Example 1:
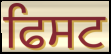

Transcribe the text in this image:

ਫਿਸਟ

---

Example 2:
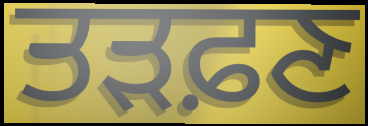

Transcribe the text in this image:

ਤੜਫ਼ਣ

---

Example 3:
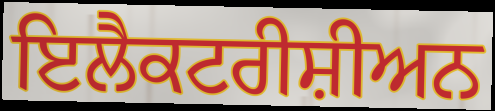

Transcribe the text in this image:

ਇਲੈਕਟਰੀਸ਼ੀਅਨ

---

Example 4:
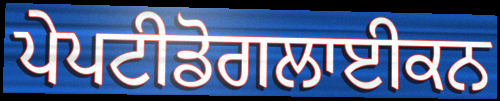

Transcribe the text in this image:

ਪੇਪਟੀਡੋਗਲਾਈਕਨ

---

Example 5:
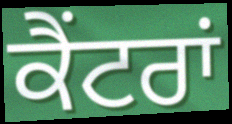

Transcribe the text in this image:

ਕੈਂਟਰਾਂ